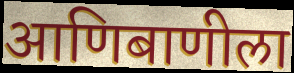
आणिबाणीला